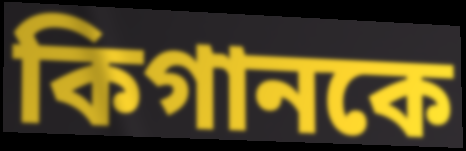
কিগানকে